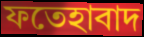
ফতেহাবাদ